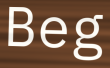
Beg